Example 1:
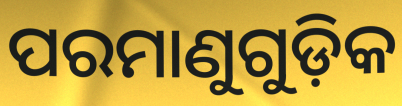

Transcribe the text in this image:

ପରମାଣୁଗୁଡ଼ିକ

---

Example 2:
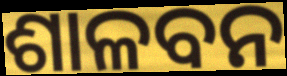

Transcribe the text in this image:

ଶାଳବନ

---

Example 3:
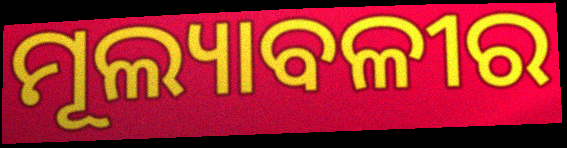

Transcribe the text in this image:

ମୂଲ୍ୟାବଳୀର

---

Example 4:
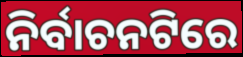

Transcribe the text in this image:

ନିର୍ବାଚନଟିରେ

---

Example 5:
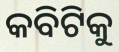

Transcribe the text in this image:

କବିଟିକୁ